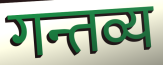
गन्तव्य